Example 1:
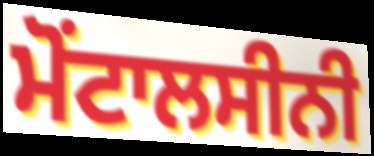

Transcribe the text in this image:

ਮੋਂਟਾਲਸੀਨੀ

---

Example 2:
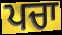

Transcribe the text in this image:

ਪਚਾ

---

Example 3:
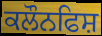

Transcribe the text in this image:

ਕਲੌਨਫਿਸ਼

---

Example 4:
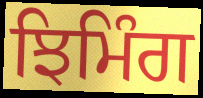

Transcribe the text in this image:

ਝਿਮਿੰਗ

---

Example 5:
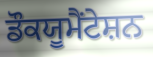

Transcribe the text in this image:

ਡੌਕਯੂਮੈਂਟੇਸ਼ਨ